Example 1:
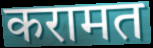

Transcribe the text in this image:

करामत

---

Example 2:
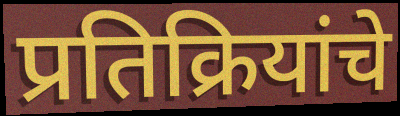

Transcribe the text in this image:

प्रतिक्रियांचे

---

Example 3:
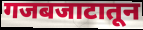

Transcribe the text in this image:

गजबजाटातून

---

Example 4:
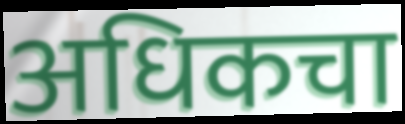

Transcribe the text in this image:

अधिकचा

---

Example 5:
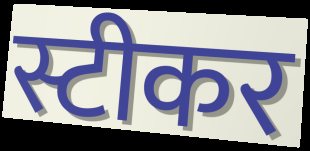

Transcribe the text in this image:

स्टीकर